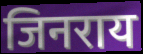
जिनराय